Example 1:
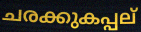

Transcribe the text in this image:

ചരക്കുകപ്പല്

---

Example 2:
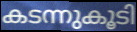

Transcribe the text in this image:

കടന്നുകൂടി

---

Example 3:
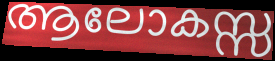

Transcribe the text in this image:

ആലോകസ്സ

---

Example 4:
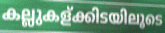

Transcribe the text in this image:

കല്ലുകള്ക്കിടയിലൂടെ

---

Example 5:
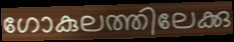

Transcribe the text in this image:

ഗോകുലത്തിലേക്കു